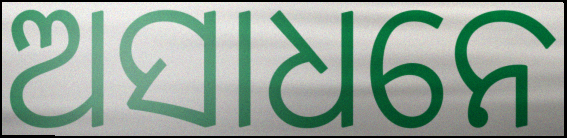
ଅସାଧନେ